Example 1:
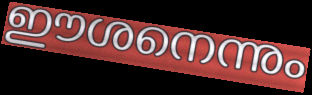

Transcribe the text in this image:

ഈശനെന്നും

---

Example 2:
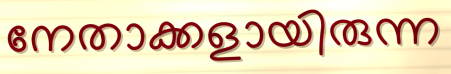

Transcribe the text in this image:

നേതാക്കളായിരുന്ന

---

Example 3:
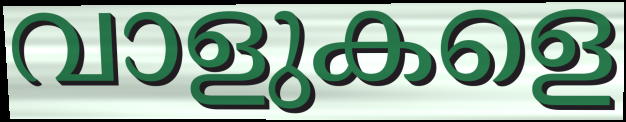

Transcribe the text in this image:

വാളുകളെ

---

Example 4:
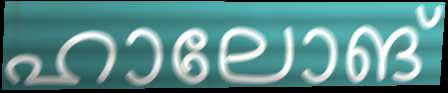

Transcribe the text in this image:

ഹാലോങ്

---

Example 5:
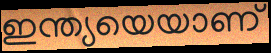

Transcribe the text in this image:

ഇന്ത്യയെയാണ്